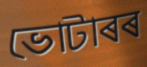
ভোটাৰৰ